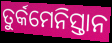
ତୁର୍କମେନିସ୍ତାନ